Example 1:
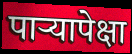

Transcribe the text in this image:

पाऱ्यापेक्षा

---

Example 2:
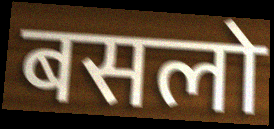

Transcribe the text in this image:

बसलो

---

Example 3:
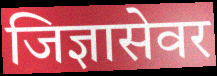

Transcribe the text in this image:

जिज्ञासेवर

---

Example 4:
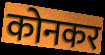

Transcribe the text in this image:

कोनकर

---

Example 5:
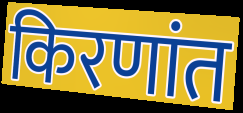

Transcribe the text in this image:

किरणांत